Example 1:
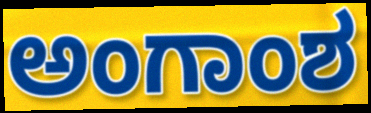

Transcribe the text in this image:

ಅಂಗಾಂಶ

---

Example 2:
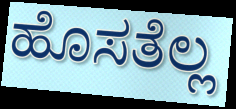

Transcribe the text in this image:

ಹೊಸತೆಲ್ಲ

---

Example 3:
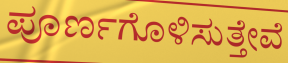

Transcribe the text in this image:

ಪೂರ್ಣಗೊಳಿಸುತ್ತೇವೆ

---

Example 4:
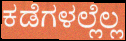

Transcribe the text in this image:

ಕಡೆಗಳಲ್ಲೆಲ್ಲ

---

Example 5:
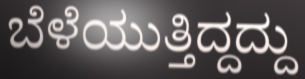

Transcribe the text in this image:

ಬೆಳೆಯುತ್ತಿದ್ದದ್ದು